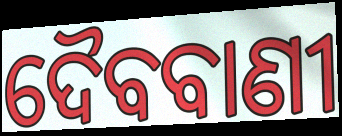
ଦୈବବାଣୀ